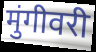
मुंगीवरी